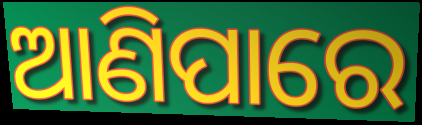
ଆଣିପାରେ